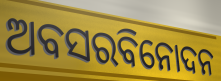
ଅବସରବିନୋଦନ